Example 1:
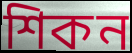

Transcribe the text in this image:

শিকন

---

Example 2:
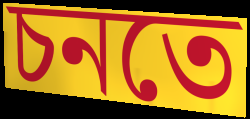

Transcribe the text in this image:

চনতে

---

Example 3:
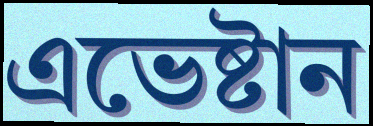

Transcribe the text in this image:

এভেষ্টান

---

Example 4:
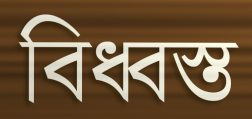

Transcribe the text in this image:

বিধ্বস্ত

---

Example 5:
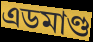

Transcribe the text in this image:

এডমাণ্ড